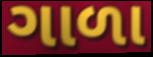
ગાળા